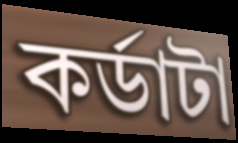
কর্ডাটা